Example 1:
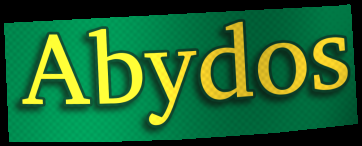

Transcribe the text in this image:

Abydos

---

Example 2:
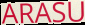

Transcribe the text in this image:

ARASU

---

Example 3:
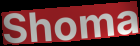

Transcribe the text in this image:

Shoma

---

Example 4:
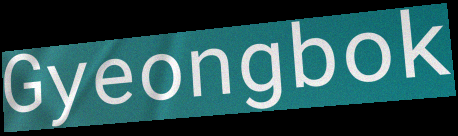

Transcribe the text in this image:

Gyeongbok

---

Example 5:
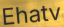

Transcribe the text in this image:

Ehatv